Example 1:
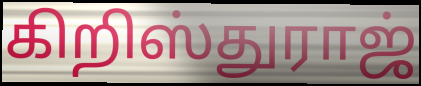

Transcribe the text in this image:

கிறிஸ்துராஜ்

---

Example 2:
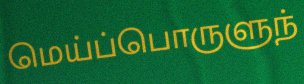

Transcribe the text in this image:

மெய்ப்பொருளுந்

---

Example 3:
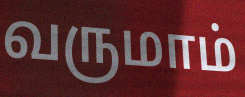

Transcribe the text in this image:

வருமாம்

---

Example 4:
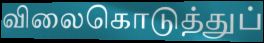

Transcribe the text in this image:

விலைகொடுத்துப்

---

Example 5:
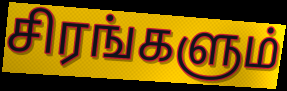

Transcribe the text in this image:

சிரங்களும்